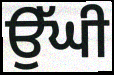
ਉੱਘੀ